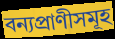
বন্যপ্ৰাণীসমূহ